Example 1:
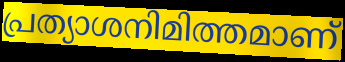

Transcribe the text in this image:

പ്രത്യാശനിമിത്തമാണ്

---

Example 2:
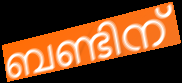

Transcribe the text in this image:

ബണ്ടിന്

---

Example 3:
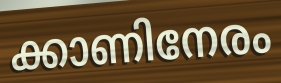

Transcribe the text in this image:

ക്കാണിനേരം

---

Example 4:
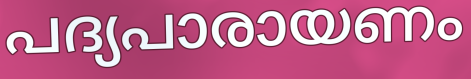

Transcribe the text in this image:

പദ്യപാരായണം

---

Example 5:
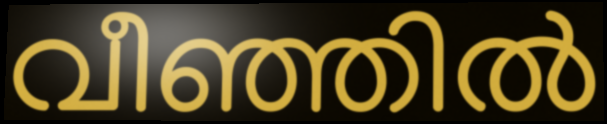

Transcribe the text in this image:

വീഞ്ഞിൽ